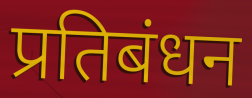
प्रतिबंधन